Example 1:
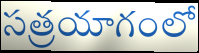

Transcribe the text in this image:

సత్రయాగంలో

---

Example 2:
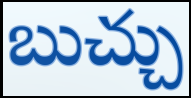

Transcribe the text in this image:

బుచ్చు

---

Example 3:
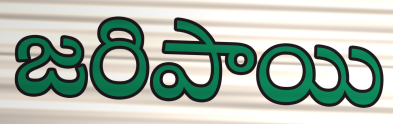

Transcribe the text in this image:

జరిపాయి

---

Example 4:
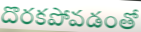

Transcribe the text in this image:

దొరకపోవడంతో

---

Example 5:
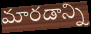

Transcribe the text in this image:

మారడాన్ని